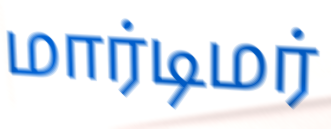
மார்டிமர்